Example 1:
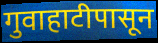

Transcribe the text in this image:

गुवाहाटीपासून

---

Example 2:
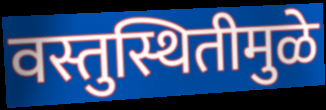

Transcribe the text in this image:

वस्तुस्थितीमुळे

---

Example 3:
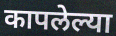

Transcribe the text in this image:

कापलेल्या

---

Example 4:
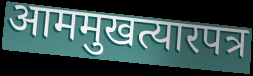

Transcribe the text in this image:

आममुखत्यारपत्र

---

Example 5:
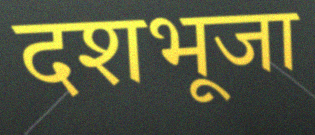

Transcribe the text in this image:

दशभूजा